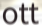
ott